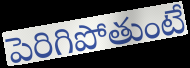
పెరిగిపోతుంటే